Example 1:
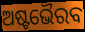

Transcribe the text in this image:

ଅଷ୍ଟଭୈରବ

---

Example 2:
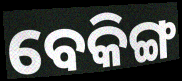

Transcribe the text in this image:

ବେକିଙ୍ଗ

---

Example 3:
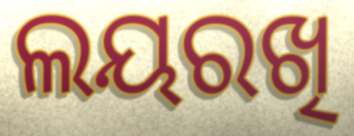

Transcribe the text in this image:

ଲୟରଖି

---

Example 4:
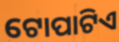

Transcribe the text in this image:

ଟୋପାଟିଏ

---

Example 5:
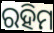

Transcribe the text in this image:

ରହିମ